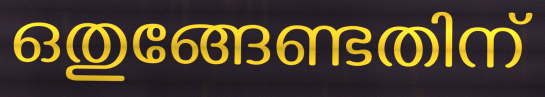
ഒതുങ്ങേണ്ടതിന്